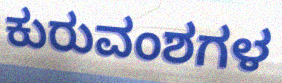
ಕುರುವಂಶಗಳ